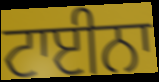
ਟਾਈਨਾ